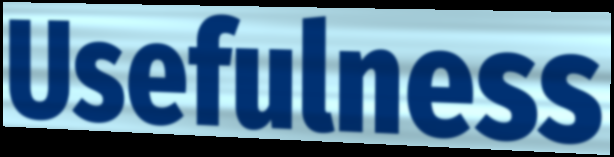
Usefulness